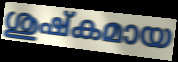
ശുഷ്‌കമായ